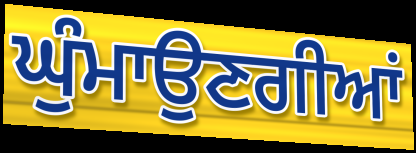
ਘੁੰਮਾਉਣਗੀਆਂ